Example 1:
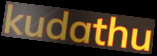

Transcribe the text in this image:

kudathu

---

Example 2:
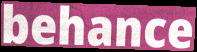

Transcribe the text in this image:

behance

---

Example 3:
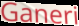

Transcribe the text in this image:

Ganeri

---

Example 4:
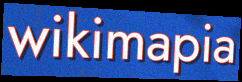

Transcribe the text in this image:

wikimapia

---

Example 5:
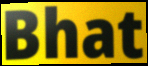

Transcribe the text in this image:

Bhat